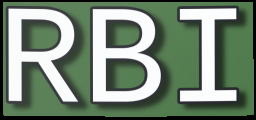
RBI